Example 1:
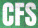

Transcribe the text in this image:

CFS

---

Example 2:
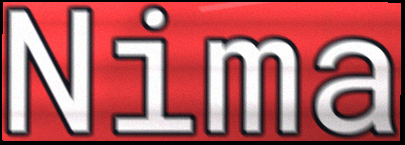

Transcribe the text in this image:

Nima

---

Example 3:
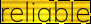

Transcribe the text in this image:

reliable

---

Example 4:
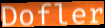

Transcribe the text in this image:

Dofler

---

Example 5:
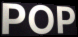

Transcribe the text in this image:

POP